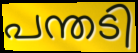
പന്തടി